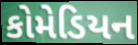
કોમેડિયન